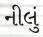
નીલું